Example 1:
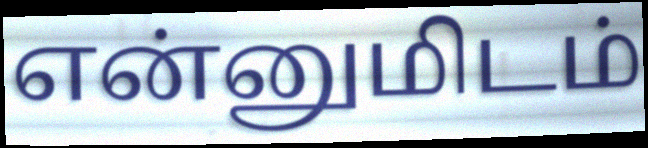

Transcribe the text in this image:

என்னுமிடம்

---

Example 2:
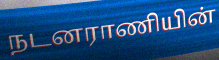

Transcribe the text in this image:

நடனராணியின்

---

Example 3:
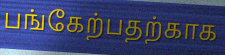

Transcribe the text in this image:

பங்கேற்பதற்காக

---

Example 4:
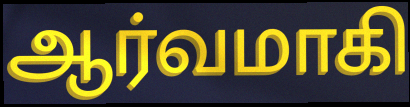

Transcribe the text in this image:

ஆர்வமாகி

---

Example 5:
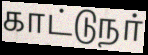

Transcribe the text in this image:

காட்டுநர்